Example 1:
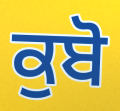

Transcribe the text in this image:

ਕੁਬੋ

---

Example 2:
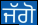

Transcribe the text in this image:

ਜੱਗੋ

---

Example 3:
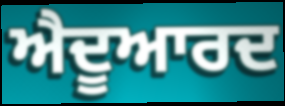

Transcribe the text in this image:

ਐਦੂਆਰਦ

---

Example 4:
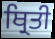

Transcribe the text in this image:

ਥ੍ਰਿਤੀ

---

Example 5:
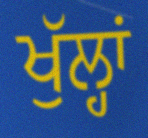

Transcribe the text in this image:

ਖੁੱਲ੍ਹਾਂ